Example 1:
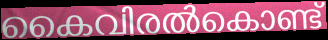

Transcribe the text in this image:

കൈവിരൽകൊണ്ട്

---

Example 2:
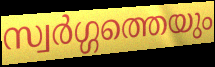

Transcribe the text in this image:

സ്വർഗ്ഗത്തെയും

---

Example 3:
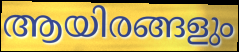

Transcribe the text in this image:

ആയിരങ്ങളും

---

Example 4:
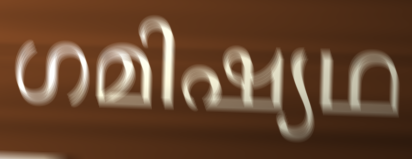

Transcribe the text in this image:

ഗമിഷ്യഥ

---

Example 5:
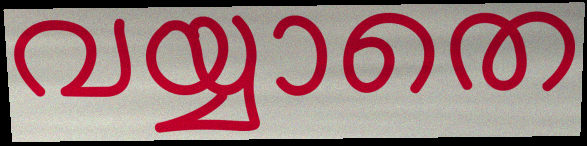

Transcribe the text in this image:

വയ്യാതെ